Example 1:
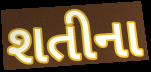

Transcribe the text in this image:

શતીના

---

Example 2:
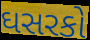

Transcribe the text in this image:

ઘસરકો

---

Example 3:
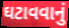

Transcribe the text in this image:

ઘટાવવાનું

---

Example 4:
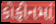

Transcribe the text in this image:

કોફીનમાં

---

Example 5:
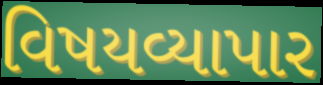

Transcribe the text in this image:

વિષયવ્યાપાર